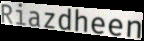
Riazdheen